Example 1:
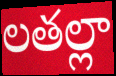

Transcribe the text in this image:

లతల్లా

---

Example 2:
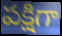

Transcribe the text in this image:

పక్షిగా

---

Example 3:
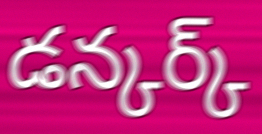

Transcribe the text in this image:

డన్కర్క్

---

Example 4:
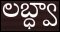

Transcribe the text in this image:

లబ్ధ్వా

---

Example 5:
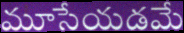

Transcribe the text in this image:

మూసేయడమే